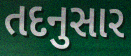
તદનુસાર